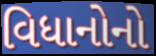
વિધાનોનો